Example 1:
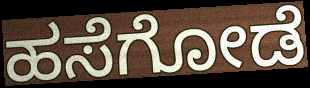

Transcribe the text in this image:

ಹಸೆಗೋಡೆ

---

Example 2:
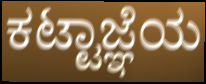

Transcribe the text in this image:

ಕಟ್ಟಾಜ್ಞೆಯ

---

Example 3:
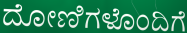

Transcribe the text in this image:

ದೋಣಿಗಳೊಂದಿಗೆ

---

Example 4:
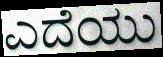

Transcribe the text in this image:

ಎದೆಯು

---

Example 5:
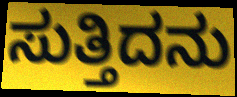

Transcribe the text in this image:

ಸುತ್ತಿದನು